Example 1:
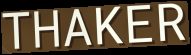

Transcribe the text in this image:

THAKER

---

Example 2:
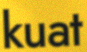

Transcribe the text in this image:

kuat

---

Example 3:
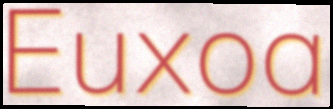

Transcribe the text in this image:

Euxoa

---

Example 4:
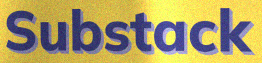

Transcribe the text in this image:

Substack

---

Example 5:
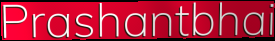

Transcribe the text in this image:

Prashantbhai